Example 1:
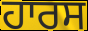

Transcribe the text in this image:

ਹਾਰਸ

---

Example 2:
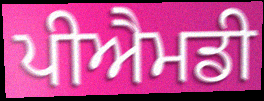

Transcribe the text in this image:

ਪੀਐਮਡੀ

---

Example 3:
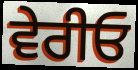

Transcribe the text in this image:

ਵੇਰੀਓ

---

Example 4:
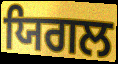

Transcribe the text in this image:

ਯਿਗਲ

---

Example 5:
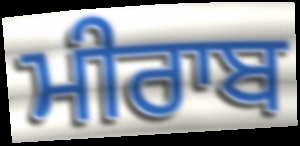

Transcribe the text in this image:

ਮੀਰਾਬ